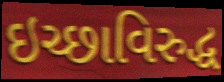
ઇચ્છાવિરુદ્ધ